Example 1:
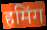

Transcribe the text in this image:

हमिंग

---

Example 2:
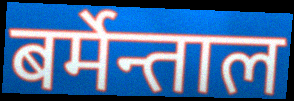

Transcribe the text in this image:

बर्मेन्ताल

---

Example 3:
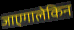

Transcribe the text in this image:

जाएगालेकिन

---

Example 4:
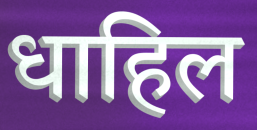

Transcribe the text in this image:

धाहिल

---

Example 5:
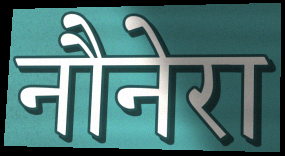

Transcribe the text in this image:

नौनेरा